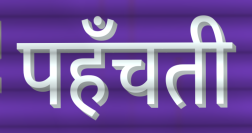
पहँचती